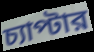
চ্যাপ্টার